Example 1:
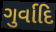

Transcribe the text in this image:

ગુર્વાદિ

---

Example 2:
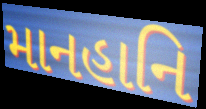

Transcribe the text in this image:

માનહાનિ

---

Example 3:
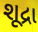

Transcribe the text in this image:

શૂદ્રા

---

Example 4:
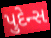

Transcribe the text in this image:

પુદેન્સ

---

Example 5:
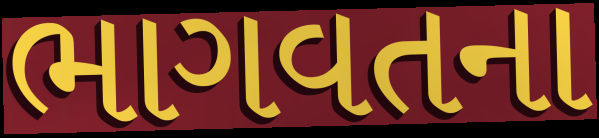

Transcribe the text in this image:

ભાગવતના